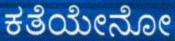
ಕತೆಯೇನೋ